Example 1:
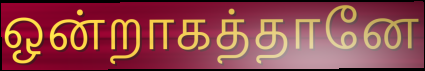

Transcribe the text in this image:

ஒன்றாகத்தானே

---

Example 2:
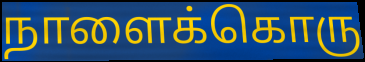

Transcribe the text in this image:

நாளைக்கொரு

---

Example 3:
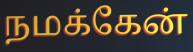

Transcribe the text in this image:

நமக்கேன்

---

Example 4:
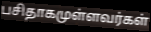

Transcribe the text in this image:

பசிதாகமுள்ளவர்கள்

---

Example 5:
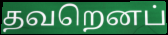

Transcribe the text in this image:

தவறெனப்